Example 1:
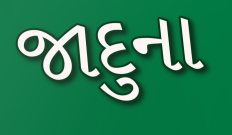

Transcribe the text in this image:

જાદુના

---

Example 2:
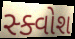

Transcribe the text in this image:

સ્ક્વોશ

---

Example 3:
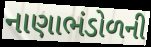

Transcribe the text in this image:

નાણાભંડોળની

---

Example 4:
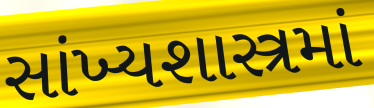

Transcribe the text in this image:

સાંખ્યશાસ્ત્રમાં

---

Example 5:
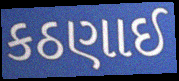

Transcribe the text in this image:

કઠણાઈ